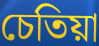
চেতিয়া